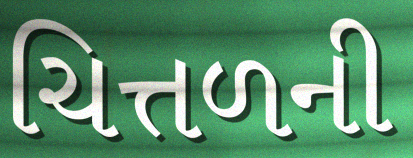
ચિત્તળની